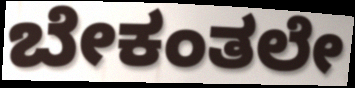
ಬೇಕಂತಲೇ